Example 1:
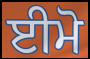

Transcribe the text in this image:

ਈਮੋ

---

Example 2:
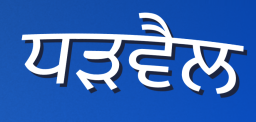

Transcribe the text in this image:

ਧੜਵੈਲ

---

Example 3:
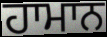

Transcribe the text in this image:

ਹਾਮਾਨ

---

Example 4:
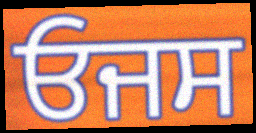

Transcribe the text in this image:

ਓਜਸ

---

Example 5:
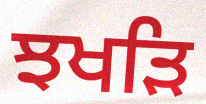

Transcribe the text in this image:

ਝਖੜਿ